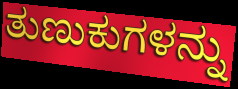
ತುಣುಕುಗಳನ್ನು